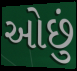
ઓછું